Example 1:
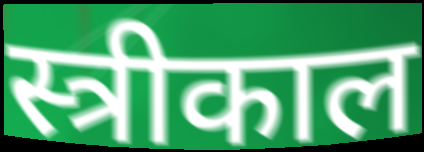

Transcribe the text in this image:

स्त्रीकाल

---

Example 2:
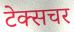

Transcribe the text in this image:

टेक्सचर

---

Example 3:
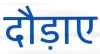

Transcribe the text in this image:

दौड़ाए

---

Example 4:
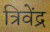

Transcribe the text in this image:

त्रिवेंद्र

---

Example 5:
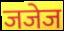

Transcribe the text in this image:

जजेज